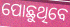
ପୋଛୁଥିବେ